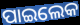
ପାଇଲେକ